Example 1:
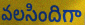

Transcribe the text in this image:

వలసిందిగా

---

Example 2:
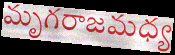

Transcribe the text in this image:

మృగరాజమధ్య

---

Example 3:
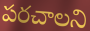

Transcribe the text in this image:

పరచాలని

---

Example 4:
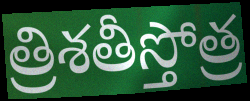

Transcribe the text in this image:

త్రిశతీస్తోత్ర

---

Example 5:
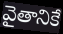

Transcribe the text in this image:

వైతానికే